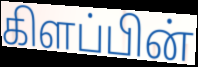
கிளப்பின்